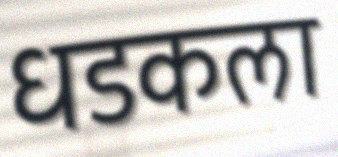
धडकला